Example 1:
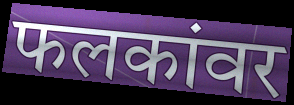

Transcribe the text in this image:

फलकांवर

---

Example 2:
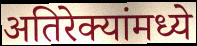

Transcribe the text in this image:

अतिरेक्यांमध्ये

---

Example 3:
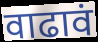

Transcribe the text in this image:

वाढावं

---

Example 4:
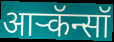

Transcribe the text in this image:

आर्‍कॅन्सॉ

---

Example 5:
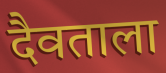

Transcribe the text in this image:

दैवताला